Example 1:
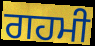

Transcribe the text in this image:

ਗਹਮੀ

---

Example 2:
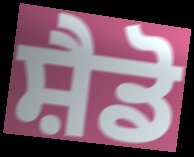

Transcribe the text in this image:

ਸ਼ੈਡੋ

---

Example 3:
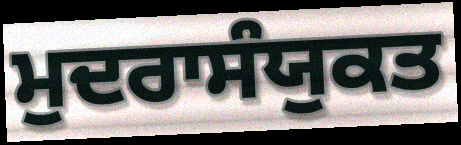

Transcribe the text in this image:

ਮੁਦਰਾਸੰਯੁਕਤ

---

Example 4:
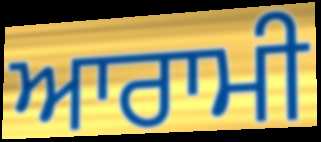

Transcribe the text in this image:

ਆਰਾਮੀ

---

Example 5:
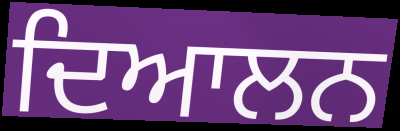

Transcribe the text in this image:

ਦਿਆਲਨ